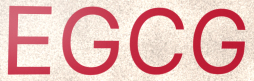
EGCG